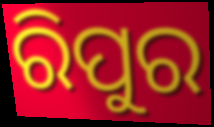
ରିପୁର